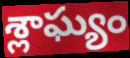
శ్లాఘ్యం